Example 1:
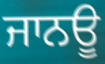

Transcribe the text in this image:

ਜਾਨਊ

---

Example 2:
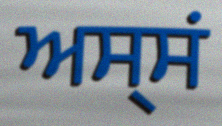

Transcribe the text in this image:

ਅਸ੍ਸਂ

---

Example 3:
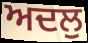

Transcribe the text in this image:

ਅਦਲੁ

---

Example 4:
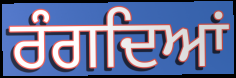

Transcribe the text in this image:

ਰੰਗਦਿਆਂ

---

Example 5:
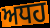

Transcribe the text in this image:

ਅਧਹ